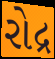
રોદ્ર